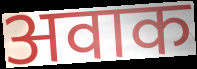
अवाक